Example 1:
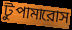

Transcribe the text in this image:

টুপামারোস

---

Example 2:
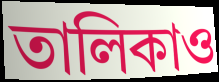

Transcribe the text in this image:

তালিকাও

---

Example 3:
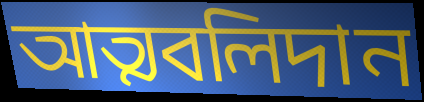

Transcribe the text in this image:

আত্মবলিদান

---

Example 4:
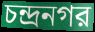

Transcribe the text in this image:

চন্দ্রনগর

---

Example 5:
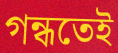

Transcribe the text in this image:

গন্ধতেই